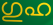
ഗുഹ